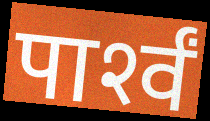
पार्श्वं